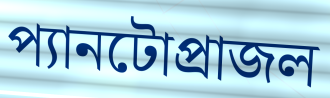
প্যানটোপ্রাজল